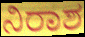
ನಿರಾಶ